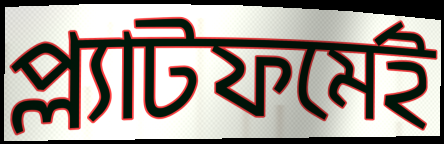
প্ল্যাটফর্মেই